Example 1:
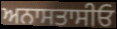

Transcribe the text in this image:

ਅਨਾਸਤਾਸੀਓ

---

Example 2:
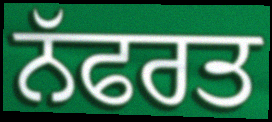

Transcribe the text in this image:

ਨੱਫਰਤ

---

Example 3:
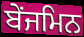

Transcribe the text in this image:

ਬੇਂਜਮਿਨ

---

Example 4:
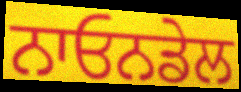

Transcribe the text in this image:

ਨਾਓਨਡੇਲ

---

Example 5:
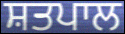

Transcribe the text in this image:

ਸ਼ਤਪਾਲ